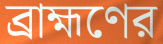
ব্রাহ্মণের